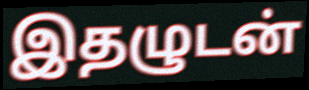
இதழுடன்